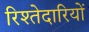
रिश्तेदारियों